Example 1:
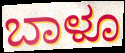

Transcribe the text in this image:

ಬಾಳೂ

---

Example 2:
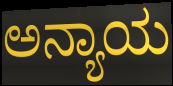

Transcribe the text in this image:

ಅನ್ಯಾಯ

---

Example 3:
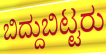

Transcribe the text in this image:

ಬಿದ್ದುಬಿಟ್ಟರು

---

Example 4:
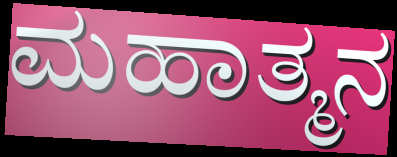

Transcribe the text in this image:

ಮಹಾತ್ಮನ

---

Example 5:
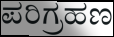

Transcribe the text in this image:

ಪರಿಗ್ರಹಣ